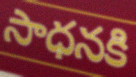
సాధనకి